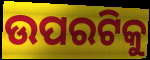
ଉପରଟିକୁ